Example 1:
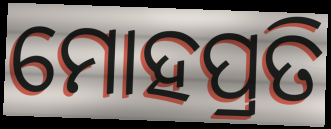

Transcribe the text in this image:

ମୋହପ୍ରତି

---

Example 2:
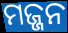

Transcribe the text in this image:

ମଜ୍ଜନ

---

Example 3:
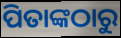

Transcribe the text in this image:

ପିତାଙ୍କଠାରୁ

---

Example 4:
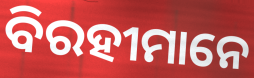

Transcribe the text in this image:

ବିରହୀମାନେ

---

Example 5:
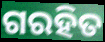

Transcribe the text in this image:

ଗରହିତ